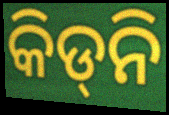
କିଡ୍‌ନି